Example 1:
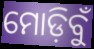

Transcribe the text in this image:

ମୋଡ଼ିବୁଁ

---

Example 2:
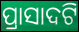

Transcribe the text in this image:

ପ୍ରାସାଦଟି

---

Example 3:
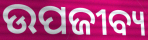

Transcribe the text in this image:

ଉପଜୀବ୍ୟ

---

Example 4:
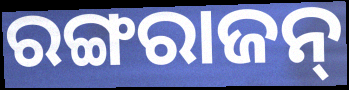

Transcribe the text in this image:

ରଙ୍ଗରାଜନ୍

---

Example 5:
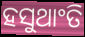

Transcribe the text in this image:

ହସୁଥାଂତି